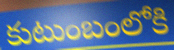
కుటుంబంలోకి